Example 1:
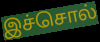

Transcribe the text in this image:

இச்சொல்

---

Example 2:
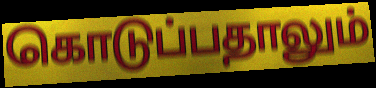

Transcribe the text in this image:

கொடுப்பதாலும்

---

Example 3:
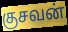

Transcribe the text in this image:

குசவன்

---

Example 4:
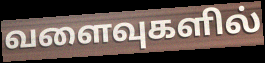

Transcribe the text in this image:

வளைவுகளில்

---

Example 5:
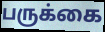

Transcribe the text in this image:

பருக்கை